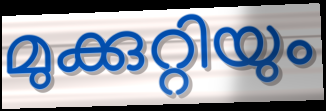
മുക്കുറ്റിയും